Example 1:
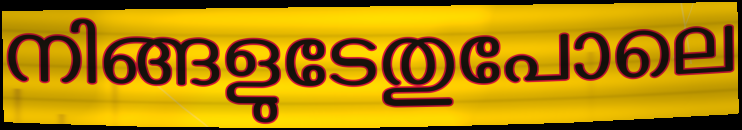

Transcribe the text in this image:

നിങ്ങളുടേതുപോലെ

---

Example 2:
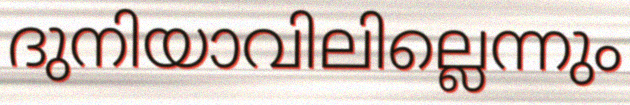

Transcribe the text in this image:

ദുനിയാവിലില്ലെന്നും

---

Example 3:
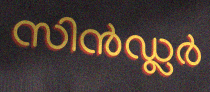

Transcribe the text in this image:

സിൻഡ്ലർ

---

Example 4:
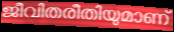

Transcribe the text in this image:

ജീവിതരീതിയുമാണ്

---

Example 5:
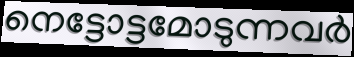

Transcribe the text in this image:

നെട്ടോട്ടമോടുന്നവർ